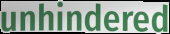
unhindered